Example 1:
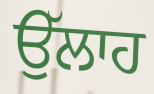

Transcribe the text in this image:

ਉੱਲਾਹ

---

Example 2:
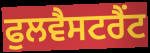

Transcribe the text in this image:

ਫੁਲਵੈਸਟਰੈਂਟ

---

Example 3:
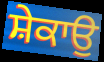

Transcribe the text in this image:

ਸ਼ੇਕਾਉ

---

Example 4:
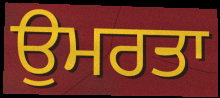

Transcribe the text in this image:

ਉਮਰਤਾ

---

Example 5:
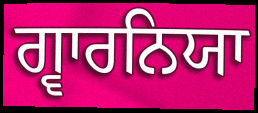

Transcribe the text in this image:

ਗ੍ਵਾਰਨਿਯਾ